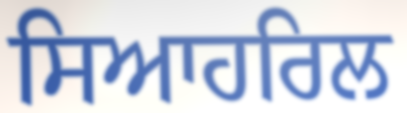
ਸਿਆਹਰਿਲ